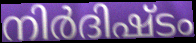
നിർദിഷ്ടം